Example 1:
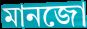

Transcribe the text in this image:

মানজো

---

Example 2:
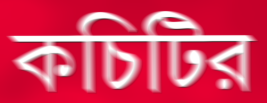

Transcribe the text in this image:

কচিটির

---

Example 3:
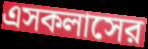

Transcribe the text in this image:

এসকলাসের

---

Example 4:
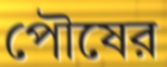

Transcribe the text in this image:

পৌষের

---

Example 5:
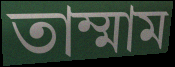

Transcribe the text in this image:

তাম্মাম